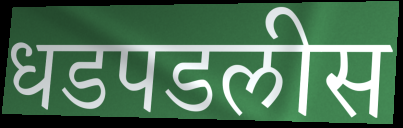
धडपडलीस